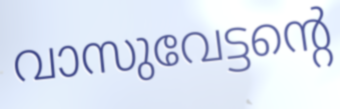
വാസുവേട്ടന്റെ